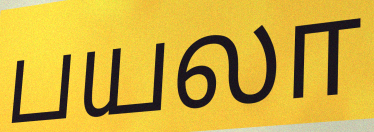
பயலா